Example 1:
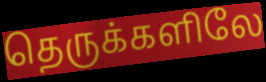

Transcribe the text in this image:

தெருக்களிலே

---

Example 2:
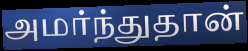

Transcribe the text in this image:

அமர்ந்துதான்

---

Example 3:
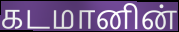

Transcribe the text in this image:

கடமானின்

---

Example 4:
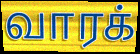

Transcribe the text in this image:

வாரக்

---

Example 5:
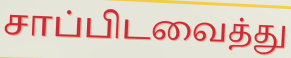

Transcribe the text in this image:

சாப்பிடவைத்து